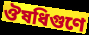
ঔষধিগুণে